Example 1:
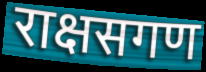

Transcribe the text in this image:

राक्षसगण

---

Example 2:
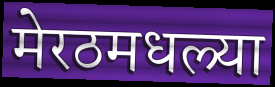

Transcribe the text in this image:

मेरठमधल्या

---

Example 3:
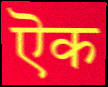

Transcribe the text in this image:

ऎक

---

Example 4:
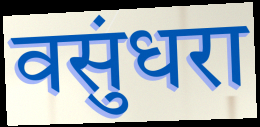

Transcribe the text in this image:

वसुंधरा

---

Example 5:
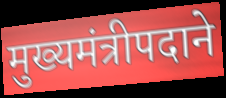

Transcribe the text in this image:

मुख्यमंत्रीपदाने